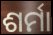
ଶର୍ମା